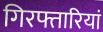
गिरफ्तारियां